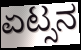
ಏಟ್ಸನ